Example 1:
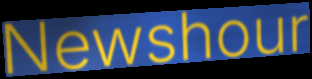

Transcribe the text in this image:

Newshour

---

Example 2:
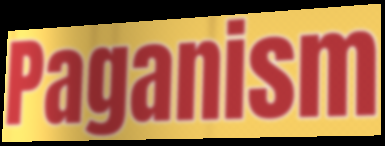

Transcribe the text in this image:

Paganism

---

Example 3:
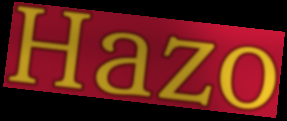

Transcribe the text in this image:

Hazo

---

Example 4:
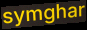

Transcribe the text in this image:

symghar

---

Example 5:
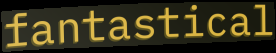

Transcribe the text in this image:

fantastical